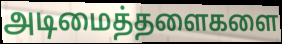
அடிமைத்தளைகளை